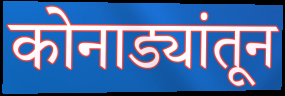
कोनाड्यांतून